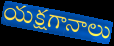
యక్షగానాలు